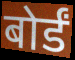
बोर्डं